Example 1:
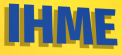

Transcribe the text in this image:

IHME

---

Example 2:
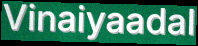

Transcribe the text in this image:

Vinaiyaadal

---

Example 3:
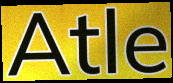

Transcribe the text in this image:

Atle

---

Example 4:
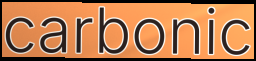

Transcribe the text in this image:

carbonic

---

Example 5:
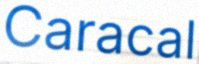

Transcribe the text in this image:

Caracal